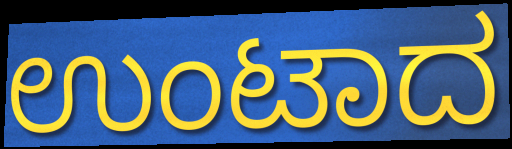
ಉಂಟಾದ